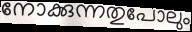
നോക്കുന്നതുപോലും